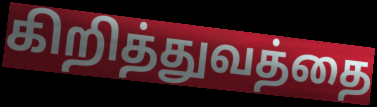
கிறித்துவத்தை